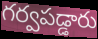
గర్వపడ్డారు